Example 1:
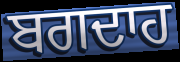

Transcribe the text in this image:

ਬਗਦਾਹ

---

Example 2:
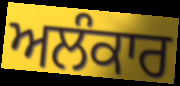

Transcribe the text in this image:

ਅਲੰਕਾਰ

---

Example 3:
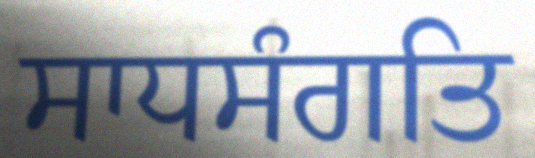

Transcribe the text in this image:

ਸਾਧਸੰਗਤਿ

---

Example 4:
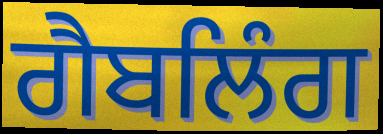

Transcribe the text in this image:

ਗੈਬਲਿੰਗ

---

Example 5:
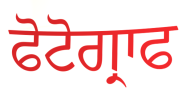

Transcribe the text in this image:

ਫੋਟੋਗ੍ਰਾਫ